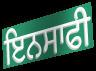
ਇਨਸਾਫੀ